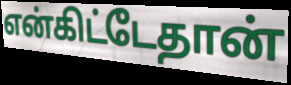
என்கிட்டேதான்